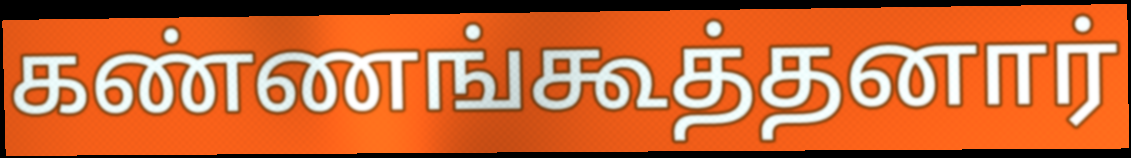
கண்ணங்கூத்தனார்